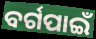
ବର୍ଗପାଇଁ